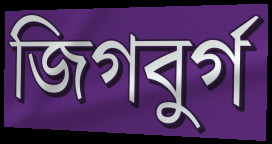
জিগবুর্গ